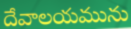
దేవాలయమును